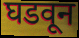
घडवून